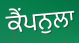
ਕੈਂਪਨੁਲਾ